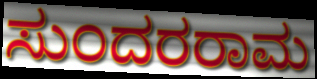
ಸುಂದರರಾಮ